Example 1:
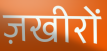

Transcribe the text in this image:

ज़खीरों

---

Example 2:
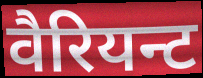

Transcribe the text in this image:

वैरियन्ट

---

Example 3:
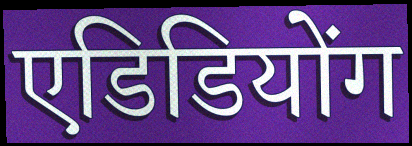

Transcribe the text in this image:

एडिडियोंग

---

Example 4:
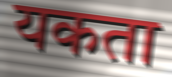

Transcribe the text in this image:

यकता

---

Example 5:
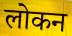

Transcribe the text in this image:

लोकन